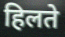
हिलते